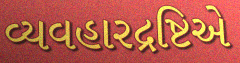
વ્યવહારદ્રષ્ટિએ